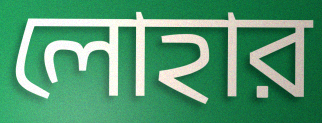
লোহার